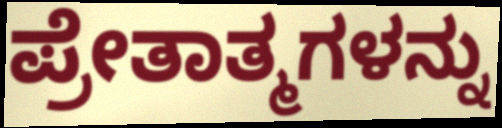
ಪ್ರೇತಾತ್ಮಗಳನ್ನು